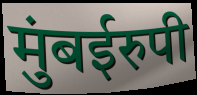
मुंबईरुपी